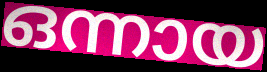
ഒന്നായ